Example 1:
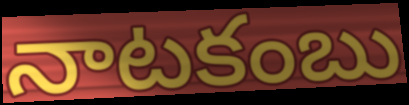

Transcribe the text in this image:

నాటకంబు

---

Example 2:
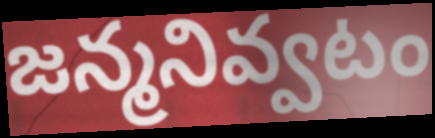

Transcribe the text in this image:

జన్మనివ్వటం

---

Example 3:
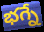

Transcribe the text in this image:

భగ్నే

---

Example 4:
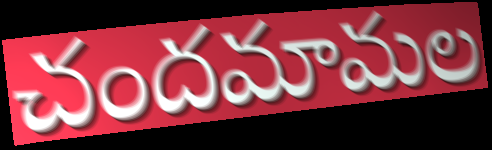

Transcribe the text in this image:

చందమామల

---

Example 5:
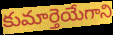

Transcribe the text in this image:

కుమార్తెయేగాని